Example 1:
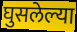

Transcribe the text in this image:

घुसलेल्या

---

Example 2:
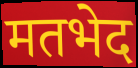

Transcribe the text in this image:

मतभेद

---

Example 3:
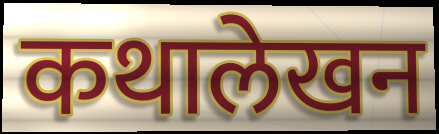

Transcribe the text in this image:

कथालेखन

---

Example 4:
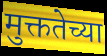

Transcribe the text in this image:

मुक्ततेच्या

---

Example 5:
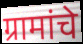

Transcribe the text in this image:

ग्रामांचे